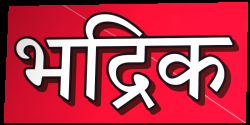
भद्रिक